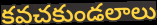
కవచకుండలాలు